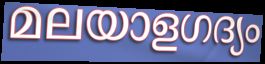
മലയാളഗദ്യം